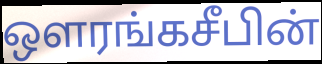
ஔரங்கசீபின்